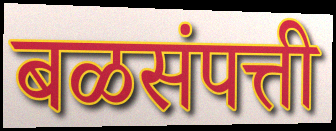
बळसंपत्ती